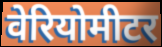
वेरियोमीटर